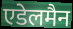
एडेलमैन